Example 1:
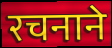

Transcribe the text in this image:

रचनाने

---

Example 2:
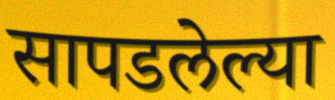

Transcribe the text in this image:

सापडलेल्‍या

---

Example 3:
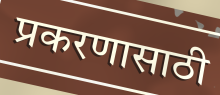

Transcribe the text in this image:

प्रकरणासाठी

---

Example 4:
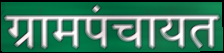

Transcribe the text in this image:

ग्रामपंचायत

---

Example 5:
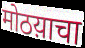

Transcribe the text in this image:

मोठय़ाचा